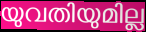
യുവതിയുമില്ല